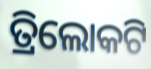
ତ୍ରିଲୋକଟି